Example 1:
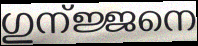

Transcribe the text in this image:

ഗുന്ജ്ജനെ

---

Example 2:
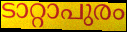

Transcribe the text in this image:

ടാറ്റാപുരം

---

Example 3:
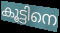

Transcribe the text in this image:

കൂട്ടിനെ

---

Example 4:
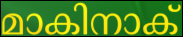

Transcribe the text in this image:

മാകിനാക്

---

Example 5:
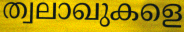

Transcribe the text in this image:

ത്വലാഖുകളെ